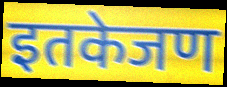
इतकेजण